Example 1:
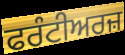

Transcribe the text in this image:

ਫਰੰਟੀਅਰਜ਼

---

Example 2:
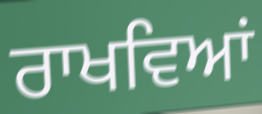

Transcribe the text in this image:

ਰਾਖਵਿਆਂ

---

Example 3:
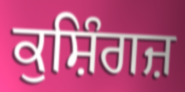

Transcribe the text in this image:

ਕੁਸ਼ਿੰਗਜ਼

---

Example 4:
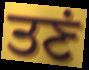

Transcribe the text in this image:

ਤਣਂ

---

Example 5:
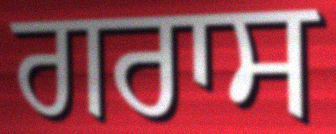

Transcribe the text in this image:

ਗਰਾਸ